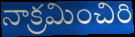
నాక్రమించిరి